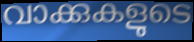
വാക്കുകളുടെ